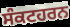
ਸੰਕਟਹਰਨ